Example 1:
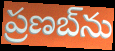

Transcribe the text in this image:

ప్రణబ్‌ను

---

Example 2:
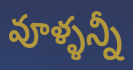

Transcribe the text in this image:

వూళ్ళన్నీ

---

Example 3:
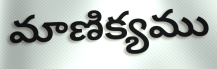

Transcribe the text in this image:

మాణిక్యము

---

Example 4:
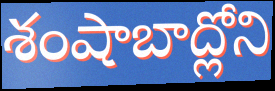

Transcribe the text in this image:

శంషాబాద్లోని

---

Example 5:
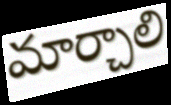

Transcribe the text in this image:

మార్చాలి